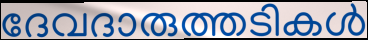
ദേവദാരുത്തടികൾ